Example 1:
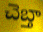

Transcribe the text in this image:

చెబ్తా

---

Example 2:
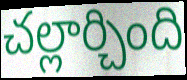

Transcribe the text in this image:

చల్లార్చింది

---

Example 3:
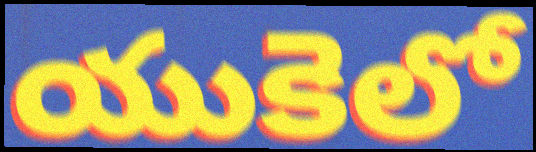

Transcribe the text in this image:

యుకెలో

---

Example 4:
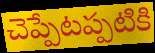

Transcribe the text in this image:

చెప్పేటప్పటికి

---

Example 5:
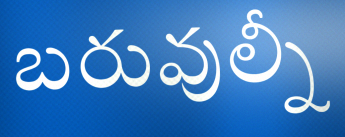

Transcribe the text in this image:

బరువుల్నీ